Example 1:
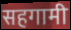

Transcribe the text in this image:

सहगामी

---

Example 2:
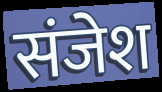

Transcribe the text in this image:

संजेश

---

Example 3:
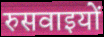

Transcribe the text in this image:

रुसवाइयों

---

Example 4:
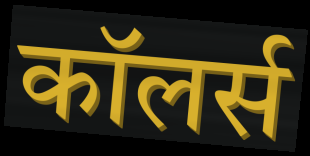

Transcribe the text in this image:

कॉलर्स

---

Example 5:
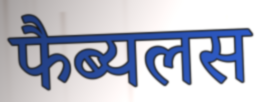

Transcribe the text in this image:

फैब्यलस